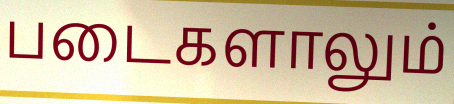
படைகளாலும்